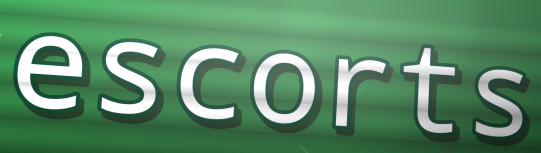
escorts